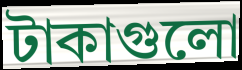
টাকাগুলো